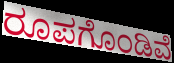
ರೂಪಗೊಂಡಿವೆ